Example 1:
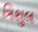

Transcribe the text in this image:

ત્રિશુલ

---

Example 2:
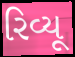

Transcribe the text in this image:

રિવ્યૂ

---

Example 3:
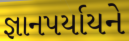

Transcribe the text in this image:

જ્ઞાનપર્યાયને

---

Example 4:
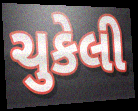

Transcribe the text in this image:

ચુકેલી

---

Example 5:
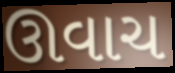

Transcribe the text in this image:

ઊવાચ